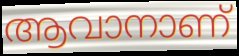
ആവാനാണ്